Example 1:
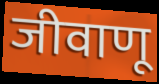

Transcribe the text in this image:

जीवाणू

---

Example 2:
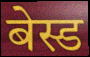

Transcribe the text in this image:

बेस्ड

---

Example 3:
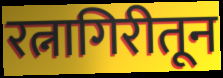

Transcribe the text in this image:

रत्नागिरीतून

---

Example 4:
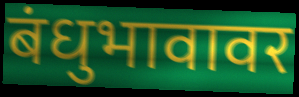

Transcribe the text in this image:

बंधुभावावर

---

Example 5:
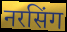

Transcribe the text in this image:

नरसिंग